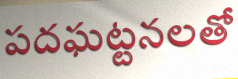
పదఘట్టనలతో